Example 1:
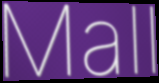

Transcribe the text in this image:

Mall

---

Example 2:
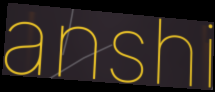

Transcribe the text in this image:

anshi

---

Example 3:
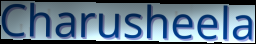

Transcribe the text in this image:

Charusheela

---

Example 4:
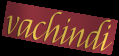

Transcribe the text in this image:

vachindi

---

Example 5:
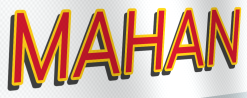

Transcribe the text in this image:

MAHAN